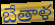
బేతాళ